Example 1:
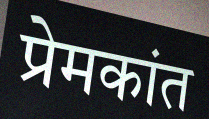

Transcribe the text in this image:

प्रेमकांत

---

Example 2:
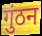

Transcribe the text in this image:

गुंठन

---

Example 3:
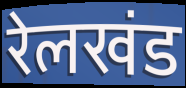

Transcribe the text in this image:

रेलखंड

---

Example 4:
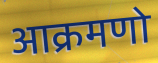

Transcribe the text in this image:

आक्रमणो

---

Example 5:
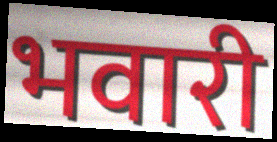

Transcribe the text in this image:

भवारी